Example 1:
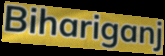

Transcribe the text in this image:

Bihariganj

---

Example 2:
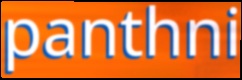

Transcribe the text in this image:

panthni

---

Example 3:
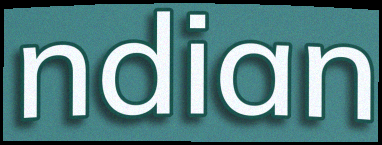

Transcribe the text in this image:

ndian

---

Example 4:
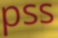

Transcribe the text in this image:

pss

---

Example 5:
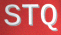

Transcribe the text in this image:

STQ